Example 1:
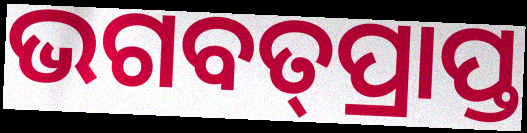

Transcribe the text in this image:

ଭଗବତ୍‌ପ୍ରାପ୍ତ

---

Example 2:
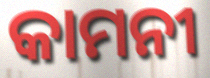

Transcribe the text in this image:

କାମନୀ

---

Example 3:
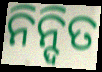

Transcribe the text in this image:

ନିନ୍ଦିତ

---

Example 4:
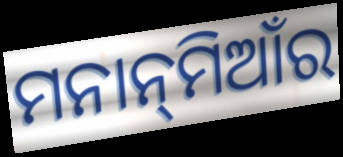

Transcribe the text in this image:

ମନାନ୍‌ମିଆଁର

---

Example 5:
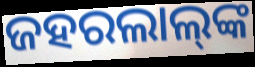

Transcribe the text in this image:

ଜହରଲାଲ୍‌ଙ୍କ